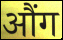
औंग